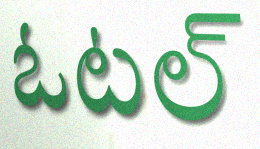
ఓటల్